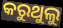
କରୁଥୁଲୁ